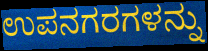
ಉಪನಗರಗಳನ್ನು